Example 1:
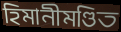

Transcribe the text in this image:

হিমানীমণ্ডিত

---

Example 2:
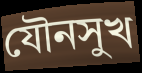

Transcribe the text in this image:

যৌনসুখ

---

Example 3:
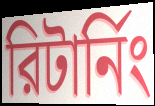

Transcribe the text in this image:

রিটার্নিং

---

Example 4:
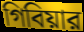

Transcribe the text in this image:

গিবিয়ার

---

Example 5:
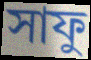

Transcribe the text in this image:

সাফু